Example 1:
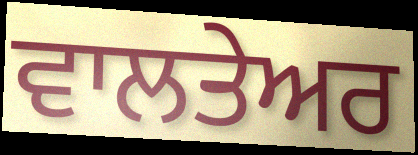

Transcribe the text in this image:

ਵਾਲਤੇਅਰ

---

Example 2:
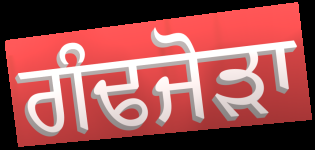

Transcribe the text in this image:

ਗੰਢਜੋੜਾ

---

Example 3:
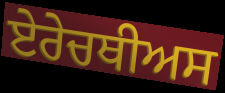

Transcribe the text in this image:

ਏਰੇਚਥੀਅਸ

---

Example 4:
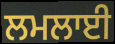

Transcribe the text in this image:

ਲਮਲਾਈ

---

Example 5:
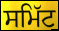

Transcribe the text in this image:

ਸਮਿੱਟ